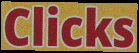
Clicks